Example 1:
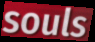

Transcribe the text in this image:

souls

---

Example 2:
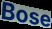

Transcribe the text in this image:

Bose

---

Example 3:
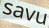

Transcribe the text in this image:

savu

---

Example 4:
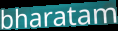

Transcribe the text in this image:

bharatam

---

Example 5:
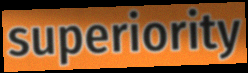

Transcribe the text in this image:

superiority